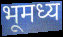
भूमध्य